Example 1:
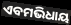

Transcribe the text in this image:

ଏବମଭିଧାୟ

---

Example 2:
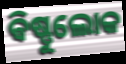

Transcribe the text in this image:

ଵିଷ୍ଣୁଲୋକ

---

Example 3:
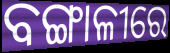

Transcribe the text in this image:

ବଙ୍ଗାଳୀରେ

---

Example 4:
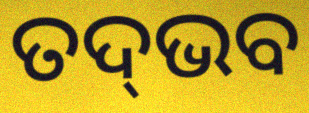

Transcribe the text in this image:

ତଦ୍‌ଭବ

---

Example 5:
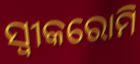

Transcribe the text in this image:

ସ୍ଵୀକରୋମି